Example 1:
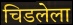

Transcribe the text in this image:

चिडलेला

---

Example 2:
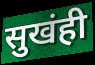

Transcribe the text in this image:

सुखंही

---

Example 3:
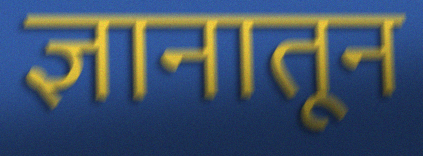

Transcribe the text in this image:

ज्ञानातून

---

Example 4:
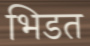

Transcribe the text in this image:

भिडत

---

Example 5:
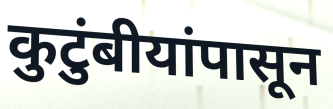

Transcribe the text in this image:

कुटुंबीयांपासून